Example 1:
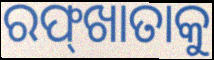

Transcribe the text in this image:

ରଫ୍‌ଖାତାକୁ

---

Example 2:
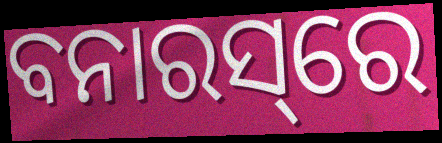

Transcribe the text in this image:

ବନାରସ୍‌ରେ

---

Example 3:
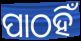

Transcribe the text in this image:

ପାଠହିଁ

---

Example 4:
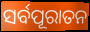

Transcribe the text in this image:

ସର୍ବପୂରାତନ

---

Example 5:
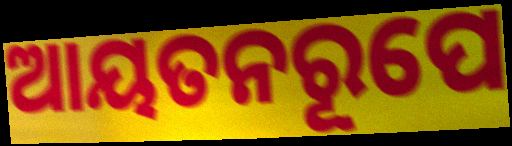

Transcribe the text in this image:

ଆୟତନରୂପେ